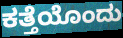
ಕತ್ತೆಯೊಂದು